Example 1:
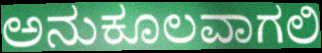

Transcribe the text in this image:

ಅನುಕೂಲವಾಗಲಿ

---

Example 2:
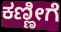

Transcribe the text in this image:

ಕಣ್ಣೀಗೆ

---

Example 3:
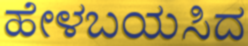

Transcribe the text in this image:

ಹೇಳಬಯಸಿದ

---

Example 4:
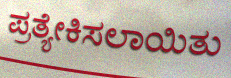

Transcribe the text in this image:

ಪ್ರತ್ಯೇಕಿಸಲಾಯಿತು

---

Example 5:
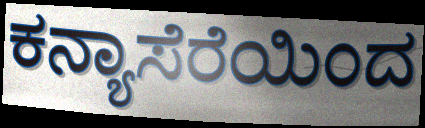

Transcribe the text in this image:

ಕನ್ಯಾಸೆರೆಯಿಂದ